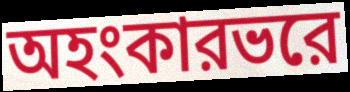
অহংকারভরে